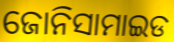
ଜୋନିସାମାଇଡ